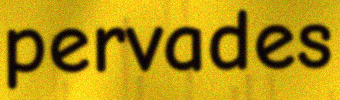
pervades